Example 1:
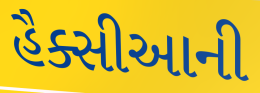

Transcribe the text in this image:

હૈક્સીઆની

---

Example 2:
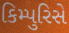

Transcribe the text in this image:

કિમ્પુરિસે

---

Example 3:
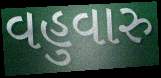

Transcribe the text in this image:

વહુવારુ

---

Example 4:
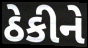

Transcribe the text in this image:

ઠેકીને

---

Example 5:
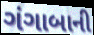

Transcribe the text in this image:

ગંગાબાની